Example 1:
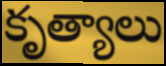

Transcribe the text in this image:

కృత్యాలు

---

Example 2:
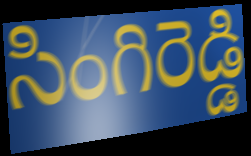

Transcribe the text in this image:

సింగిరెడ్డి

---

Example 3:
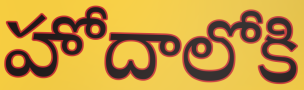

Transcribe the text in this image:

హోదాలోకి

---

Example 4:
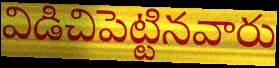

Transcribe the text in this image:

విడిచిపెట్టినవారు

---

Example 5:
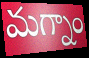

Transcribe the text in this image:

మగ్నాం